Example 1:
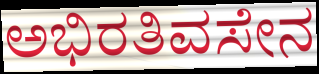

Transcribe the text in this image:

ಅಭಿರತಿವಸೇನ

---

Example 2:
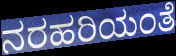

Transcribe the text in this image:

ನರಹರಿಯಂತೆ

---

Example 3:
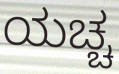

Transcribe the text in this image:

ಯಚ್ಚ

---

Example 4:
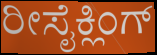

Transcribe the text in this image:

ರೀಸೈಕ್ಲಿಂಗ್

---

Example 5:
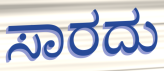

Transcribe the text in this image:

ಸಾರದು